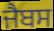
ਜੈਬਸ